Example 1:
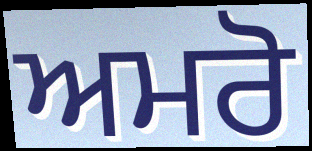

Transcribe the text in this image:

ਅਮਰੋ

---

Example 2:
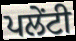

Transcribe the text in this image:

ਪਲੇਂਟੀ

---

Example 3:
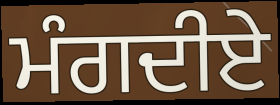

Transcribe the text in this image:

ਮੰਗਦੀਏ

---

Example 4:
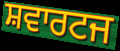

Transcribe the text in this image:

ਸ਼ਵਾਰਟਜ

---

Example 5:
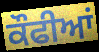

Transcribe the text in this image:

ਕੌਫੀਆਂ